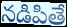
నడిపితే